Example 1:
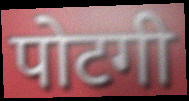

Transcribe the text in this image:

पोटगी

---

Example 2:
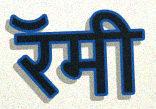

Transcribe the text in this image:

रॅमी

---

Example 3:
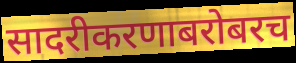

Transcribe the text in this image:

सादरीकरणाबरोबरच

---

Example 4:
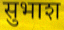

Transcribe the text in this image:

सुभाश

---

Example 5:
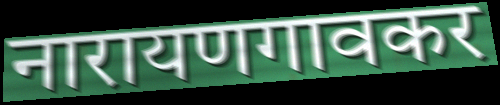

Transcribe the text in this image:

नारायणगावकर